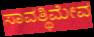
ಸಾವತ್ಥಿಮೇವ